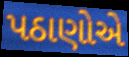
પઠાણોએ